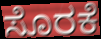
ಸೊರಕೆ